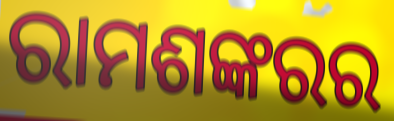
ରାମଶଙ୍କରର